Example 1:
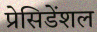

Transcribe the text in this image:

प्रेसिडेंशल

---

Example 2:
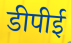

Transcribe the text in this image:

डीपीई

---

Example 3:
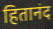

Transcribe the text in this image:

हितानंद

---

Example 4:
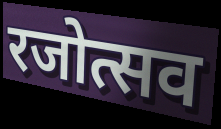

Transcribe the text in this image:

रजोत्सव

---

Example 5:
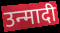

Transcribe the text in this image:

उन्मादी